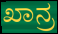
ಖಾನ್ರ